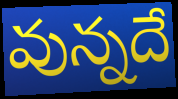
వున్నదే